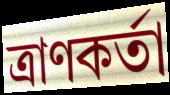
ত্ৰাণকৰ্তা